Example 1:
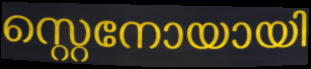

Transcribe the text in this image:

സ്റ്റെനോയായി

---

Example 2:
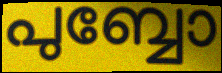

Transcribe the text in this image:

പുബ്ബോ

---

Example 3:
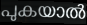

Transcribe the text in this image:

പുകയാൽ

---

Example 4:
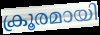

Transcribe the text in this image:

ക്രൂരമായി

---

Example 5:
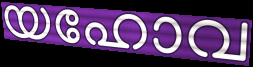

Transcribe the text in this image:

യഹോവ